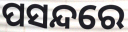
ପସନ୍ଦରେ